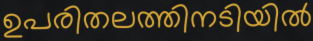
ഉപരിതലത്തിനടിയിൽ